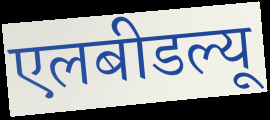
एलबीडल्यू